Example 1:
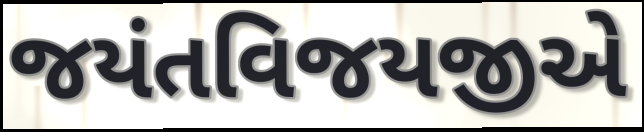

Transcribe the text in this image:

જયંતવિજયજીએ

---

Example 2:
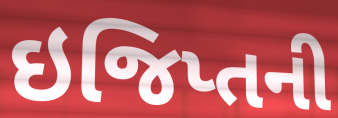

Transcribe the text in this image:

ઇજિપ્તની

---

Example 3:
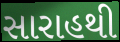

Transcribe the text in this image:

સારાહથી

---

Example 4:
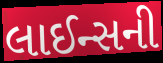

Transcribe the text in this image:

લાઈન્સની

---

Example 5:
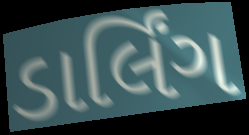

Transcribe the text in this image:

ડાર્લિંગ